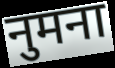
नुमना